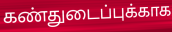
கண்துடைப்புக்காக